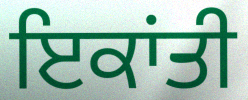
ਇਕਾਂਤੀ